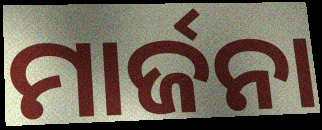
ମାର୍ଜନା